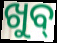
ଖୁବ୍